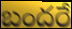
బందరే